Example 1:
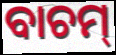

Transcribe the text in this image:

ବାଚମ୍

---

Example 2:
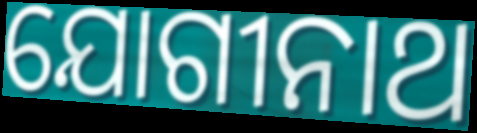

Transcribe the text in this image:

ଯୋଗୀନାଥ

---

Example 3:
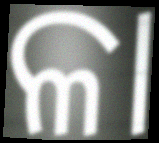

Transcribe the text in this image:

ଳା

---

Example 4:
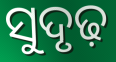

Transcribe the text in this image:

ସୁଦୃଢ଼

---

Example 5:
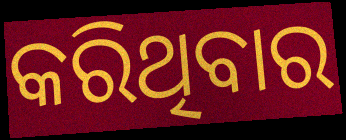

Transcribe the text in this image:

କରିଥିବାର